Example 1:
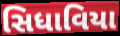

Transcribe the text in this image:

સિધાવિયા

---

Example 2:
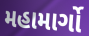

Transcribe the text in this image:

મહામાર્ગો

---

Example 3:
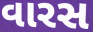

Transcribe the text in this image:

વારસ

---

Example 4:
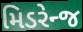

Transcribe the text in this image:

મિડરેન્જ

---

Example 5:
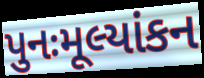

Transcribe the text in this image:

પુનઃમૂલ્યાંકન